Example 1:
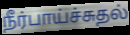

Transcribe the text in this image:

நீர்பாய்ச்சுதல்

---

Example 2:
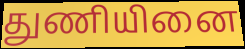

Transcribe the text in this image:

துணியினை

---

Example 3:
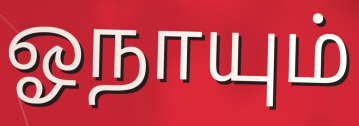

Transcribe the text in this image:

ஓநாயும்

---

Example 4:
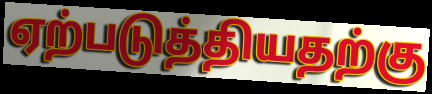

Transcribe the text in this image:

ஏற்படுத்தியதற்கு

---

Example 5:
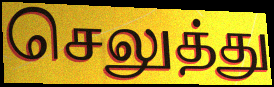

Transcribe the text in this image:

செலுத்து